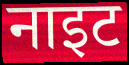
नाइट